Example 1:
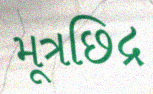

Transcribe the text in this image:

મૂત્રછિદ્ર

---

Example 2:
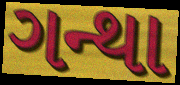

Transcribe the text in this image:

ગન્થા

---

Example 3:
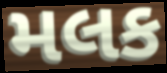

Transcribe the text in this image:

મલક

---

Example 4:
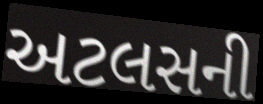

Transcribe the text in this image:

અટલસની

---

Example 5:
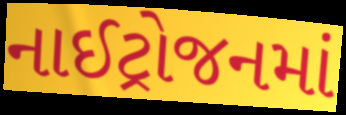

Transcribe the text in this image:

નાઈટ્રોજનમાં